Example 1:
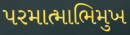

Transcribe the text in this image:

પરમાત્માભિમુખ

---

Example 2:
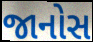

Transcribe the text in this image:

જાનોસ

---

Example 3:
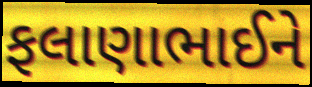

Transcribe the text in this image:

ફલાણાભાઈને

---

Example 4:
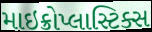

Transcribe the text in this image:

માઇક્રોપ્લાસ્ટિક્સ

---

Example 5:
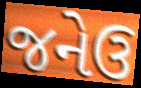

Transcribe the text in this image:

જનેઉ